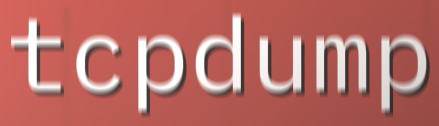
tcpdump